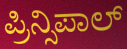
ಪ್ರಿನ್ಸಿಪಾಲ್